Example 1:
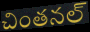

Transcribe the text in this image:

చింతనల్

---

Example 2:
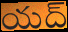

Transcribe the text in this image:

యద్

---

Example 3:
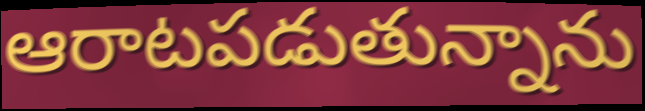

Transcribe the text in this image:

ఆరాటపడుతున్నాను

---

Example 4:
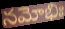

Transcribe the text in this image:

నమోభిః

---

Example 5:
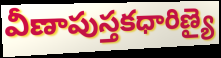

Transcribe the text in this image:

వీణాపుస్తకధారిణ్యై